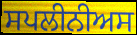
ਸਪਲੀਨੀਅਸ